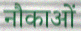
नौकाओं